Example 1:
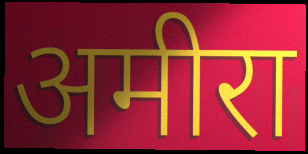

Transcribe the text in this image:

अमीरा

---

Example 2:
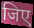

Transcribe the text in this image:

जिए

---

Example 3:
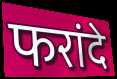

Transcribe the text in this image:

फरांदे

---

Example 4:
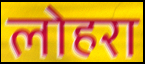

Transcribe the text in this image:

लोहरा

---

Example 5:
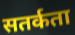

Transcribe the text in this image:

सतर्कता